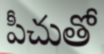
పీచుతో